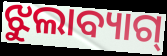
ଝୁଲାବ୍ୟାଗ୍